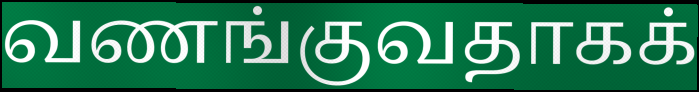
வணங்குவதாகக்